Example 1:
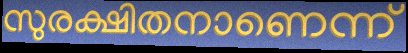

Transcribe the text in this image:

സുരക്ഷിതനാണെന്ന്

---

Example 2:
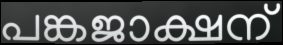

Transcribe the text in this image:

പങ്കജാക്ഷന്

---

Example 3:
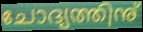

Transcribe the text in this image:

ചോദ്യത്തിനു്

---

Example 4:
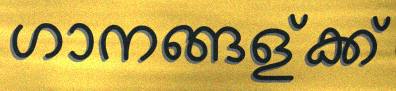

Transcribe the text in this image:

ഗാനങ്ങള്ക്ക്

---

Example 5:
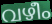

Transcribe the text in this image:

വഴീം